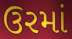
ઉરમાં